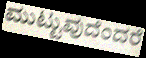
ಮುಟ್ಟುವುದೆಂದರೆ